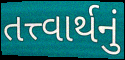
તત્ત્વાર્થનું